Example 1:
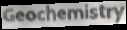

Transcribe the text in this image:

Geochemistry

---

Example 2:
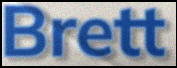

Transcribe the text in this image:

Brett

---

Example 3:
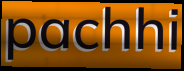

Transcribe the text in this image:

pachhi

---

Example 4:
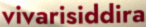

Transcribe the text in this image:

vivarisiddira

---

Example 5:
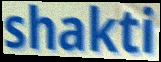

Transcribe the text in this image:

shakti